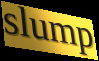
slump